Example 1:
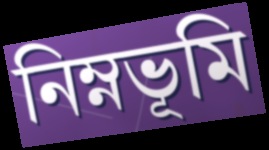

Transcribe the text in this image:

নিম্নভূমি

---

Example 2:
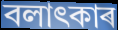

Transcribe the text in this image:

বলাৎকাৰ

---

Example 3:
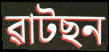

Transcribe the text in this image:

ৱাটছন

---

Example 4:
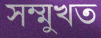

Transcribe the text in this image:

সম্মুখত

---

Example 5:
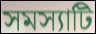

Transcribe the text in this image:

সমস্যাটি